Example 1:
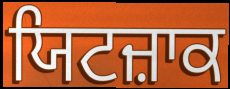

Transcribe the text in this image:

ਯਿਟਜ਼ਾਕ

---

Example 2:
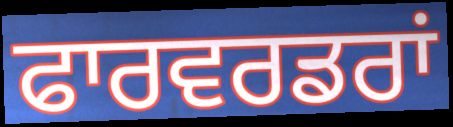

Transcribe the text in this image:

ਫਾਰਵਰਡਰਾਂ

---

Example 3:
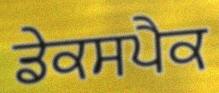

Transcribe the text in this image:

ਡੇਕਸਪੈਕ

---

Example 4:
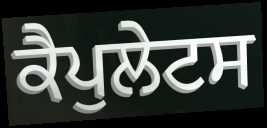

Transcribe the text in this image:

ਕੈਪੁਲੇਟਸ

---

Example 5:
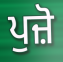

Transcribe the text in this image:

ਪੁਜ਼ੋ